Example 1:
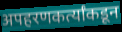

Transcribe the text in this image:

अपहरणकर्त्यांकडून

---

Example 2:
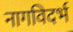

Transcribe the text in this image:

नागविदर्भ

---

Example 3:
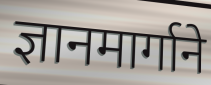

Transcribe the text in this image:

ज्ञानमार्गाने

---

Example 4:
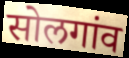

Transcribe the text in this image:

सोलगांव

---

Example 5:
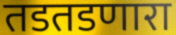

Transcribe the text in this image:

तडतडणारा